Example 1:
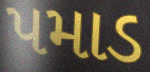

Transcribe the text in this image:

પમાડ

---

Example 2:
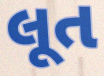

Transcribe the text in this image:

લૂત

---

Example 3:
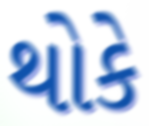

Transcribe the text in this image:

થોકે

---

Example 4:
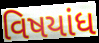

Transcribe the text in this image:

વિષયાંધ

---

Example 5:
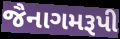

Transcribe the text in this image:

જૈનાગમરૂપી